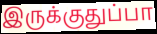
இருக்குதுப்பா